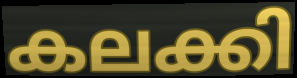
കലക്കി